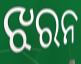
ଝରନ